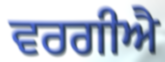
ਵਰਗੀਐ